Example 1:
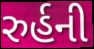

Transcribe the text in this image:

રુર્હની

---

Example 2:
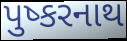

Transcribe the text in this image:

પુષ્કરનાથ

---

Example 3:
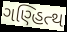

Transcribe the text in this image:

ગણ્હિત્થ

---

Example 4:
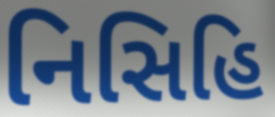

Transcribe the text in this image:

નિસિહિ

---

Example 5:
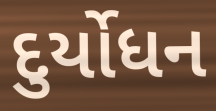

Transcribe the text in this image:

દુર્યોધન